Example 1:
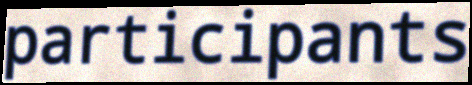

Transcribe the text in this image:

participants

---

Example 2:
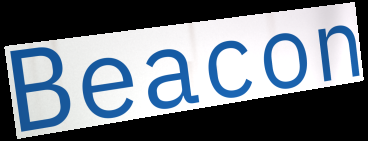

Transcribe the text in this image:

Beacon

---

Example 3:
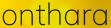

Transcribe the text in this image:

onthara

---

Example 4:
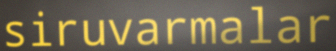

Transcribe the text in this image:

siruvarmalar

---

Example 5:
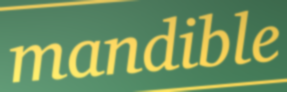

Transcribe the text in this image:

mandible